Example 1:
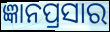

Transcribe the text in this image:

ଜ୍ଞାନପ୍ରସାର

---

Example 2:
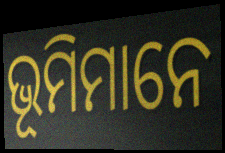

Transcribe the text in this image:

ଭୂମିମାନେ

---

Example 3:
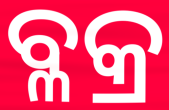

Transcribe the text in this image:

ବ୍ଳକ୍ର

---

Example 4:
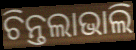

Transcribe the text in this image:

ଚିନ୍ତଲାଭାଲି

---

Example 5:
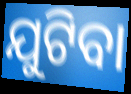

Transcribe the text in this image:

ଯୁଟିବା